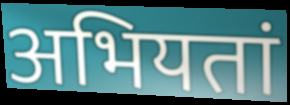
अभियतां